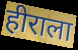
हीराला